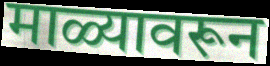
माळ्यावरून